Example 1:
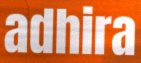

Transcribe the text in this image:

adhira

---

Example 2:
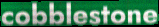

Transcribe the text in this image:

cobblestone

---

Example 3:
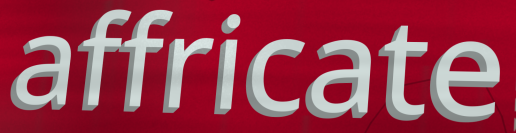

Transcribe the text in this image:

affricate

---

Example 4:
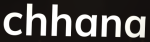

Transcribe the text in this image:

chhana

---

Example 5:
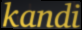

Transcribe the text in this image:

kandi